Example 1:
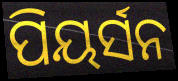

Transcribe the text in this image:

ପିୟର୍ସନ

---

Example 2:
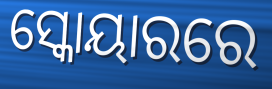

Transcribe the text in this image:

ସ୍କୋୟାରରେ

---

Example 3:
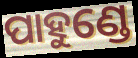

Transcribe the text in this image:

ପାହୁଣ୍ଡେ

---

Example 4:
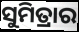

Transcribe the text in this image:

ସୁମିତ୍ରାର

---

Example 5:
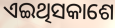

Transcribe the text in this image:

ଏଇଥିସକାଶେ